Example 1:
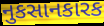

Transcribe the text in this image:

નુકસાનકારક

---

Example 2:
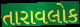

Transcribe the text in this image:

તારાવલોક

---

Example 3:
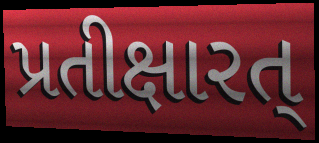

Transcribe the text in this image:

પ્રતીક્ષારત્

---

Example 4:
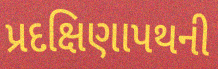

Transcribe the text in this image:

પ્રદક્ષિણાપથની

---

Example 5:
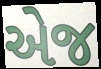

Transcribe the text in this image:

એજ